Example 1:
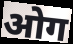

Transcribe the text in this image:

ओग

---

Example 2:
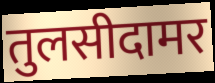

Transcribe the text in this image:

तुलसीदामर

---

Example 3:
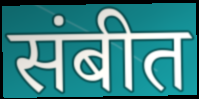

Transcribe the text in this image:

संबीत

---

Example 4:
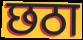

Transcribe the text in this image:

छठा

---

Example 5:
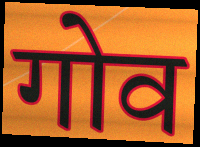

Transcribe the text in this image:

गोव